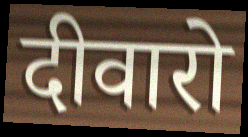
दीवारो